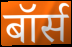
बॉर्स